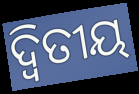
ଦ୍ୱିତୀୟ